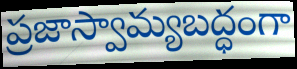
ప్రజాస్వామ్యబద్ధంగా